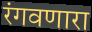
रंगवणारा